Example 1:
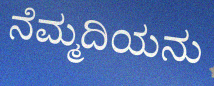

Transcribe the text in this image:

ನೆಮ್ಮದಿಯನು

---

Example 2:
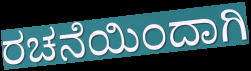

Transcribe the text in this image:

ರಚನೆಯಿಂದಾಗಿ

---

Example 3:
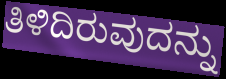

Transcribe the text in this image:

ತಿಳಿದಿರುವುದನ್ನು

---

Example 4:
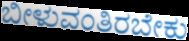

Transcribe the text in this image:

ಬೀಳುವಂತಿರಬೇಕು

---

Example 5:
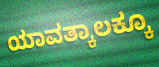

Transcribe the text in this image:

ಯಾವತ್ಕಾಲಕ್ಕೂ